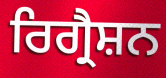
ਰਿਗ੍ਰੈਸ਼ਨ